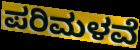
ಪರಿಮಳವೆ